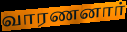
வாரணனார்